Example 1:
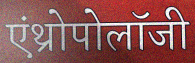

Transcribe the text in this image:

एंथ्रोपोलॉजी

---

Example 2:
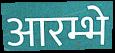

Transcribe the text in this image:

आरम्भे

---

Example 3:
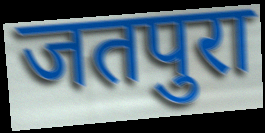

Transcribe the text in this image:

जतपुरा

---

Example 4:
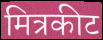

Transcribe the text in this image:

मित्रकीट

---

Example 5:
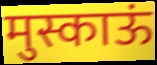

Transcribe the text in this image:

मुस्काऊं